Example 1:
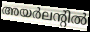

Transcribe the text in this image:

അയർലന്റിൽ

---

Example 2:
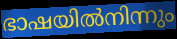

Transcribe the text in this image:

ഭാഷയിൽനിന്നും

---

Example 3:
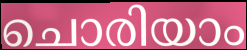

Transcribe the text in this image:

ചൊരിയാം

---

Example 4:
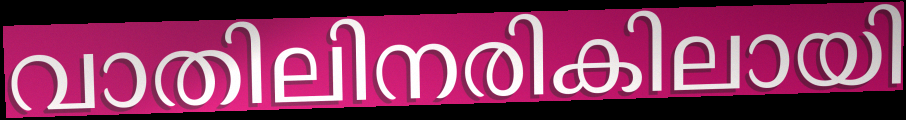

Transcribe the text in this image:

വാതിലിനരികിലായി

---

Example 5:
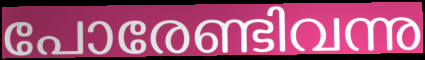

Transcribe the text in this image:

പോരേണ്ടിവന്നു